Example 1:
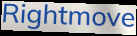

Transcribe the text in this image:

Rightmove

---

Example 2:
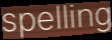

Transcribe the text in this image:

spelling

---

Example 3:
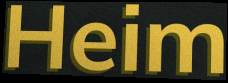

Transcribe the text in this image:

Heim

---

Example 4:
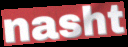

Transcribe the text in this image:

nasht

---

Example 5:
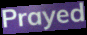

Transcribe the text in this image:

Prayed